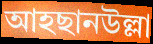
আহছানউল্লা